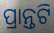
ପ୍ରାନ୍ତଟି